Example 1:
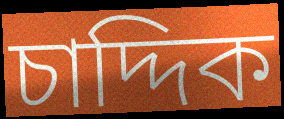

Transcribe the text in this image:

চাদ্দিক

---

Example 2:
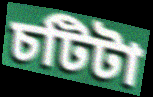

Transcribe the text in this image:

চটিটা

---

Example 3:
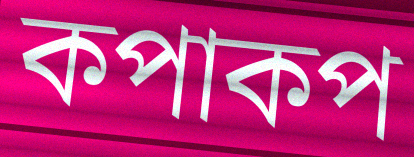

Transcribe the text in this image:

কপাকপ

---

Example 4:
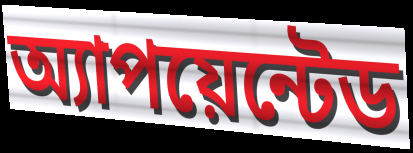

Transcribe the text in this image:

অ্যাপয়েন্টেড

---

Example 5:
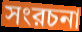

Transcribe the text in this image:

সংরচনা